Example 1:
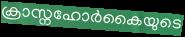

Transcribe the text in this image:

ക്രാസ്നഹോർകൈയുടെ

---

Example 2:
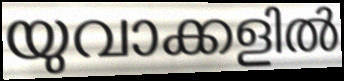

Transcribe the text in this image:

യുവാക്കളിൽ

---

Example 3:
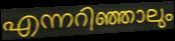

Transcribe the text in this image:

എന്നറിഞ്ഞാലും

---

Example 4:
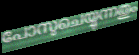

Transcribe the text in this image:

പോസുചെയ്യുന്നതും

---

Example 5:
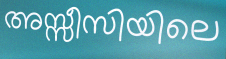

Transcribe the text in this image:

അസ്സീസിയിലെ